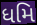
ધમિ